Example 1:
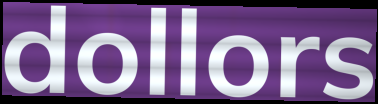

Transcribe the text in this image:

dollors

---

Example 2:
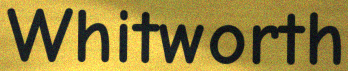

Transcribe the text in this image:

Whitworth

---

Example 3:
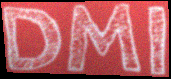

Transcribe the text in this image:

DMI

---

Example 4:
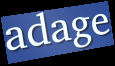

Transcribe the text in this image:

adage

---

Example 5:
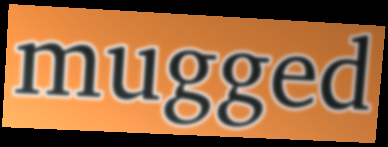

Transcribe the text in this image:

mugged